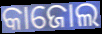
କାଜୋଲ